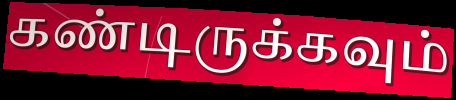
கண்டிருக்கவும்